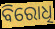
ବିରୋଧି